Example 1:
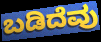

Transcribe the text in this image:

ಬಡಿದೆವು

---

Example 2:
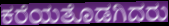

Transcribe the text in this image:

ಕರೆಯತೊಡಗಿದರು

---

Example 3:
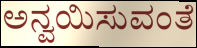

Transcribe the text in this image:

ಅನ್ವಯಿಸುವಂತೆ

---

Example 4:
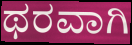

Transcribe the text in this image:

ಥರವಾಗಿ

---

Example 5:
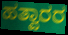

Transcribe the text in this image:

ಹತ್ವಾರರ